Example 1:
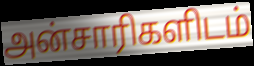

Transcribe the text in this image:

அன்சாரிகளிடம்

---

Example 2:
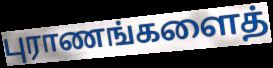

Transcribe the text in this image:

புராணங்களைத்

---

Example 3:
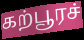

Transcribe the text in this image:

கற்பூரச்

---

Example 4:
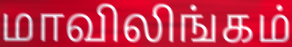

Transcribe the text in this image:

மாவிலிங்கம்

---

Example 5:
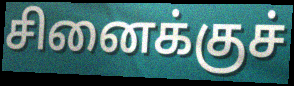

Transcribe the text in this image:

சினைக்குச்